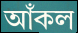
আঁকল